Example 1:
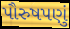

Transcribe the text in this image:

પૌરુષપણું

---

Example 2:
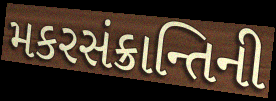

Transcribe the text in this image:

મકરસંક્રાન્તિની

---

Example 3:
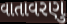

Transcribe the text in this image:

વાતાવરણુ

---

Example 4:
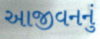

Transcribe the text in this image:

આજીવનનું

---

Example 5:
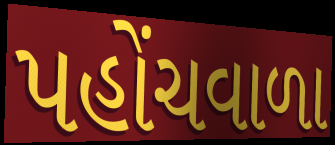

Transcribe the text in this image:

પહોંચવાળા